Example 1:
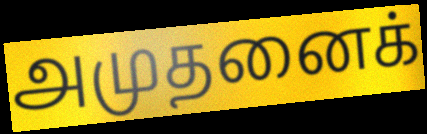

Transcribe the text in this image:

அமுதனைக்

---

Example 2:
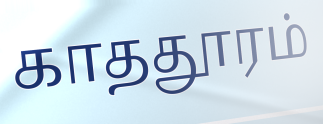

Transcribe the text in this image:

காததூரம்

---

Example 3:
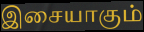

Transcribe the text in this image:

இசையாகும்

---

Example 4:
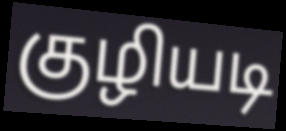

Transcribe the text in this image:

குழியடி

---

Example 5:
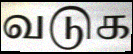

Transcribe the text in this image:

வடுக